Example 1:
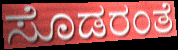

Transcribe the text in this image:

ಸೊಡರಂತೆ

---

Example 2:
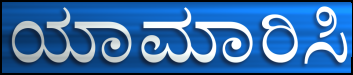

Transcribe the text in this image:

ಯಾಮಾರಿಸಿ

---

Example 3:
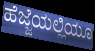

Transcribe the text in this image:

ಹೆಜ್ಜೆಯಲ್ಲಿಯೂ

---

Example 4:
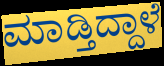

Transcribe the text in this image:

ಮಾಡ್ತಿದ್ದಾಳೆ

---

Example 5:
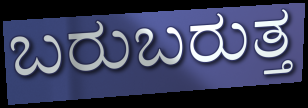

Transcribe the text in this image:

ಬರುಬರುತ್ತ